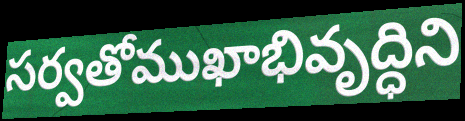
సర్వతోముఖాభివృద్ధిని